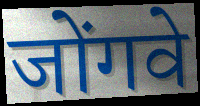
जोंगवे